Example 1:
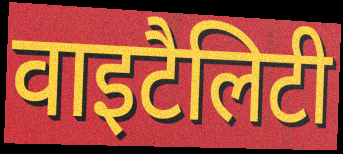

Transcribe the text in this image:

वाइटैलिटी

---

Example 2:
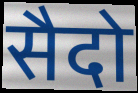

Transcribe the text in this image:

सैदो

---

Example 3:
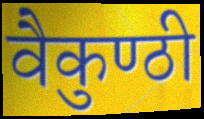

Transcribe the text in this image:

वैकुण्ठी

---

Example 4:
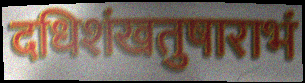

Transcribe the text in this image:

दधिशंखतुषाराभं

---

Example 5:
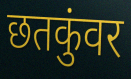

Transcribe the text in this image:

छतकुंवर